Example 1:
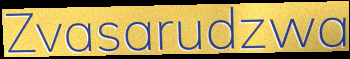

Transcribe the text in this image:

Zvasarudzwa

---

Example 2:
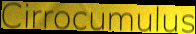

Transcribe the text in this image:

Cirrocumulus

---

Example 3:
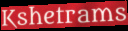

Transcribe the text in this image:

Kshetrams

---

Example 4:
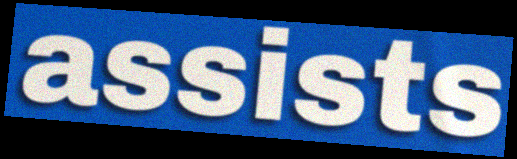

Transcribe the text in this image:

assists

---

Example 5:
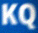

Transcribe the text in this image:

KQ